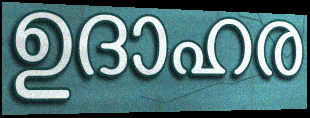
ഉദാഹര